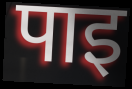
पाइ